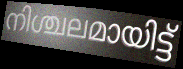
നിശ്ചലമായിട്ട്